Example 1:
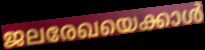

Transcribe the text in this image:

ജലരേഖയെക്കാൾ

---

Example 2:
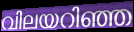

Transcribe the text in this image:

വിലയറിഞ്ഞ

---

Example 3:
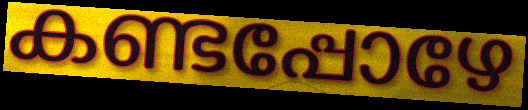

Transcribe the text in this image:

കണ്ടപ്പോഴേ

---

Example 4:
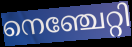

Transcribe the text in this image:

നെഞ്ചേറ്റി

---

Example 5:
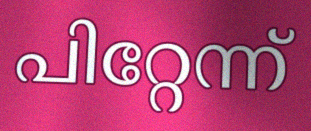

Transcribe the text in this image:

പിറ്റേന്ന്